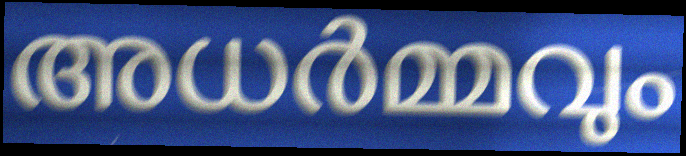
അധർമ്മവും